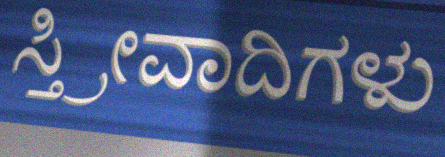
ಸ್ತ್ರೀವಾದಿಗಳು